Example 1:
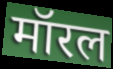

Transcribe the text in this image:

मॉरल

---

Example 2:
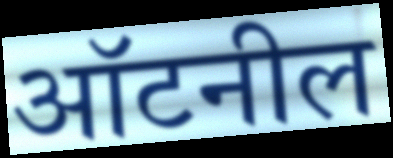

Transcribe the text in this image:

ऑटनील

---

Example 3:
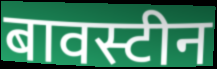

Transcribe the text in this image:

बावस्टीन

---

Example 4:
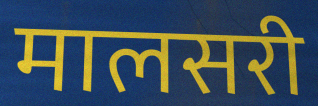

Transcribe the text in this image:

मालसरी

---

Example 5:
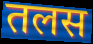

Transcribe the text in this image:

तलस